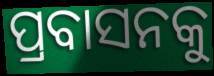
ପ୍ରବାସନକୁ